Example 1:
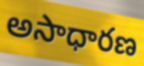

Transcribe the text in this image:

అసాధారణ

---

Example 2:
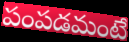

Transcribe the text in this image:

పంపడమంటే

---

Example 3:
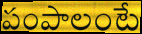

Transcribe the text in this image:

పంపాలంటే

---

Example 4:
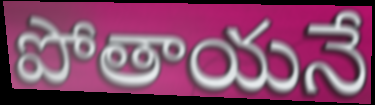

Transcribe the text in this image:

పోతాయనే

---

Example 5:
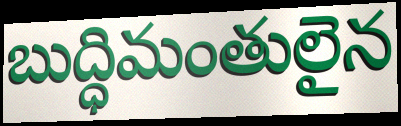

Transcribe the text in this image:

బుద్ధిమంతులైన